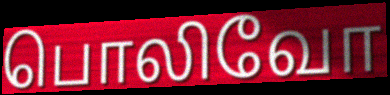
பொலிவோ